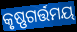
କୃଷ୍ଣଗର୍ତ୍ତମୟ